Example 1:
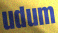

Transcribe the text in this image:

udum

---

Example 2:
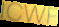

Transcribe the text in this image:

ICWF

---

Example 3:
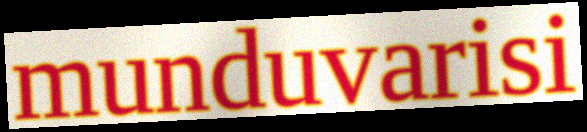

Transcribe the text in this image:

munduvarisi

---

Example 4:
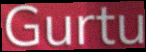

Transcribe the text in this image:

Gurtu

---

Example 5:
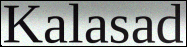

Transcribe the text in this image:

Kalasad